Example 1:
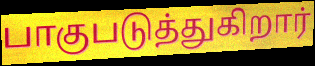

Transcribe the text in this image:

பாகுபடுத்துகிறார்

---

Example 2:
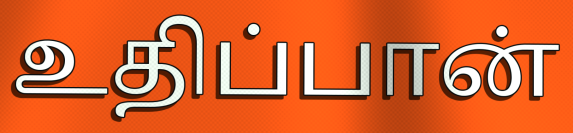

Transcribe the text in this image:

உதிப்பான்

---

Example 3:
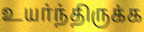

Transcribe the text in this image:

உயர்ந்திருக்க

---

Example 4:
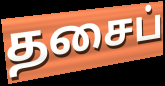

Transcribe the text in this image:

தசைப்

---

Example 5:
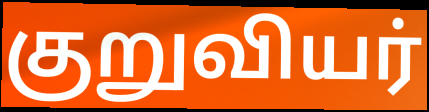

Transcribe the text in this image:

குறுவியர்